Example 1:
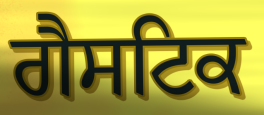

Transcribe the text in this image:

ਗੈਸਟਿਕ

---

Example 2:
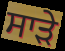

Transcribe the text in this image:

ਸਾੜੇ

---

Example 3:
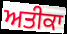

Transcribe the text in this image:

ਅਤੀਕਾ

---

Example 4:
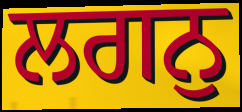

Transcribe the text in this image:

ਲਗਨੁ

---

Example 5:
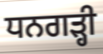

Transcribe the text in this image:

ਧਨਗੜ੍ਹੀ